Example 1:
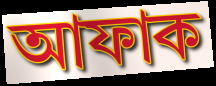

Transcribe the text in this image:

আফাক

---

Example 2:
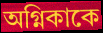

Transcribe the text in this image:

অগ্নিকাকে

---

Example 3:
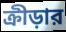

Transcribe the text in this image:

ক্রীড়ার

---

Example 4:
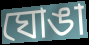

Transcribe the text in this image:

ঘোঙা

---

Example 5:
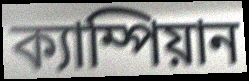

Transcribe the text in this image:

ক্যাম্পিয়ান